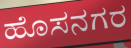
ಹೊಸನಗರ